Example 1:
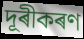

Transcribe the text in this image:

দূৰীকৰণ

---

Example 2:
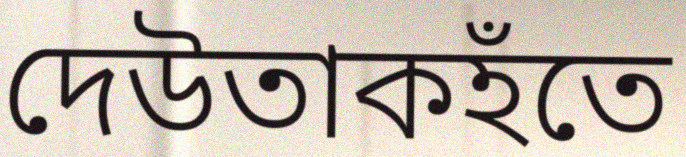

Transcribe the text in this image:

দেউতাকহঁতে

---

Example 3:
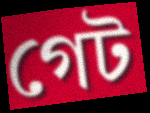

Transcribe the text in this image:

গেট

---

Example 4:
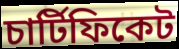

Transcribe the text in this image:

চাৰ্টিফিকেট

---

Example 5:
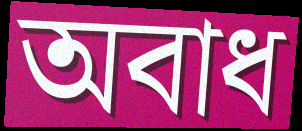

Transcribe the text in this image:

অবাধ